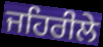
ਜਹਿਰੀਲੇ